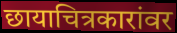
छायाचित्रकारांवर